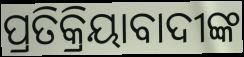
ପ୍ରତିକ୍ରିୟାବାଦୀଙ୍କ